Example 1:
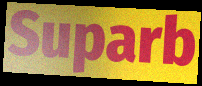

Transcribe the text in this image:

Suparb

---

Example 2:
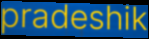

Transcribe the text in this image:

pradeshik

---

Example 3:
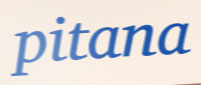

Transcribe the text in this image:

pitana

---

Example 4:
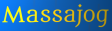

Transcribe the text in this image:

Massajog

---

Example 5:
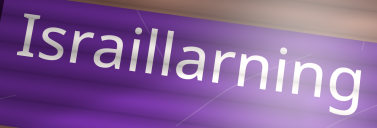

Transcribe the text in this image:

Israillarning